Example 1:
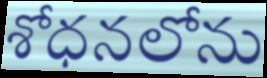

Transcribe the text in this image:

శోధనలోను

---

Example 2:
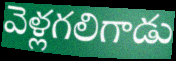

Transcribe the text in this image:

వెళ్లగలిగాడు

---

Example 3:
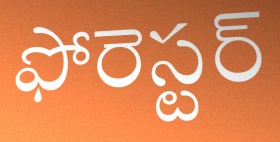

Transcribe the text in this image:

ఫోరెస్టర్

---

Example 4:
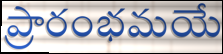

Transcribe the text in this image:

ప్రారంభమయే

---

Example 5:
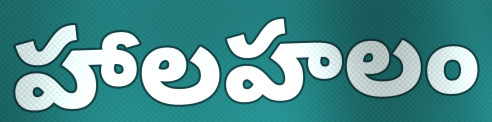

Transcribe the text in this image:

హాలహలం